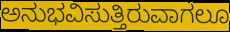
ಅನುಭವಿಸುತ್ತಿರುವಾಗಲೂ